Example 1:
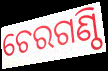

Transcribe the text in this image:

ଚେରଗଣ୍ଠି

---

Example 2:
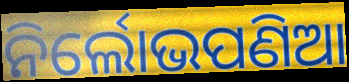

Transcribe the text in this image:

ନିର୍ଲୋଭପଣିଆ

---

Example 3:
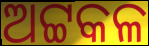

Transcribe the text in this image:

ଅଟ୍ଟକଳ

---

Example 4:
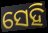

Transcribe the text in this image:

ସେହି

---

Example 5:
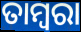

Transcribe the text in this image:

ତାମ୍ବରା